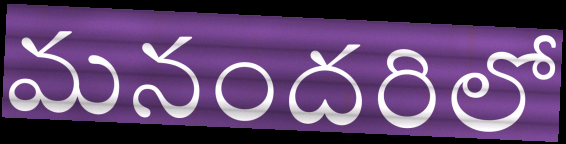
మనందరిలో